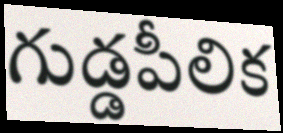
గుడ్డపీలిక